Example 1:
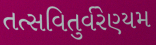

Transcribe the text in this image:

તત્સવિતુર્વરેણ્યમ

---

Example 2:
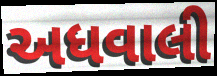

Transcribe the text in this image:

અધવાલી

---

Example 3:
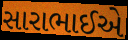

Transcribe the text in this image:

સારાભાઈએ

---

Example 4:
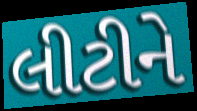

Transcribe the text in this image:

લીટીને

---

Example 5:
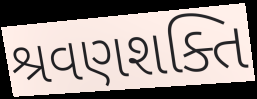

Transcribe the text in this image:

શ્રવણશક્તિ